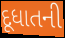
દૂધાતની